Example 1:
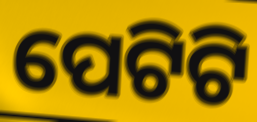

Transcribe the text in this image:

ପେଟିଟି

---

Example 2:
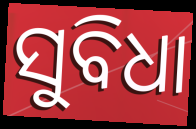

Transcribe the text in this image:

ସୁବିଧା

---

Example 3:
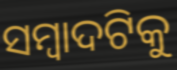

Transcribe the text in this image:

ସମ୍ୱାଦଟିକୁ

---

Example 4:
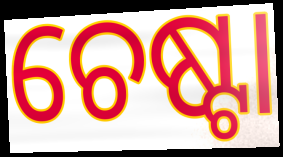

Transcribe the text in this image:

ଚେଷ୍ଟା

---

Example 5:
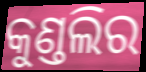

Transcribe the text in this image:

କୁଣ୍ଡଲିର